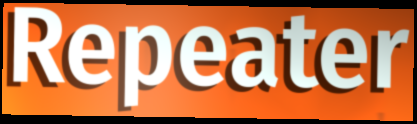
Repeater